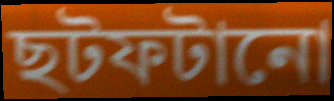
ছটফটানো